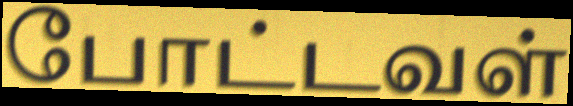
போட்டவள்